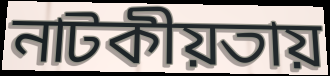
নাটকীয়তায়